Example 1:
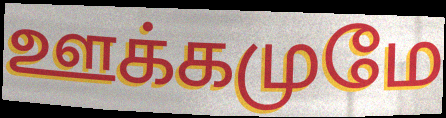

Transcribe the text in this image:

ஊக்கமுமே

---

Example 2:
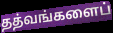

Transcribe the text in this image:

தத்வங்களைப்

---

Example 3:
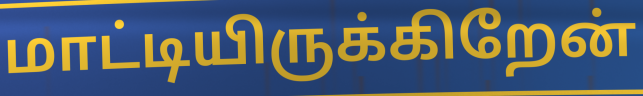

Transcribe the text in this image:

மாட்டியிருக்கிறேன்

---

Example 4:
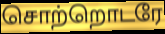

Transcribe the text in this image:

சொற்றொடரே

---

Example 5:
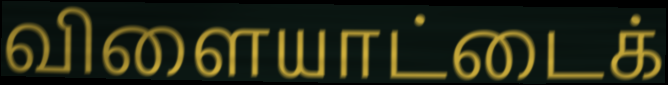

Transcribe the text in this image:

விளையாட்டைக்